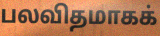
பலவிதமாகக்